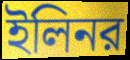
ইলিনর